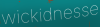
wickidnesse